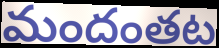
మందంతట